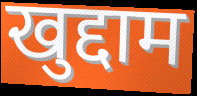
खुद्दाम